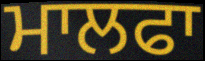
ਮਾਲਫਾ